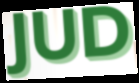
JUD